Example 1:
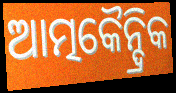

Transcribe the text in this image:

ଆତ୍ମକୈନ୍ଦ୍ରିକ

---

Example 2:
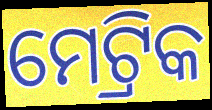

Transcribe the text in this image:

ମେଟ୍ରିକ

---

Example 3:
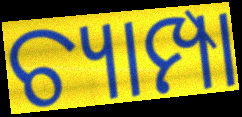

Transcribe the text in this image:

ଚ୍ୟାମ୍ପା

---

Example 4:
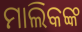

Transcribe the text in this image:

ମାଲିକଙ୍କ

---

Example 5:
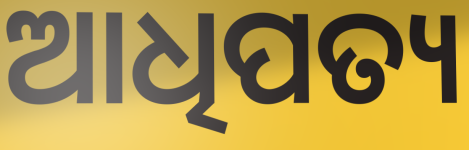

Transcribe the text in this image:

ଆଧିପତ୍ୟ